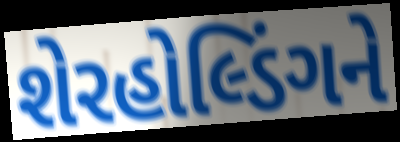
શેરહોલ્ડિંગને